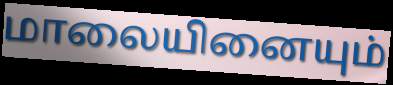
மாலையினையும்